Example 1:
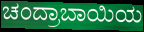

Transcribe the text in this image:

ಚಂದ್ರಾಬಾಯಿಯ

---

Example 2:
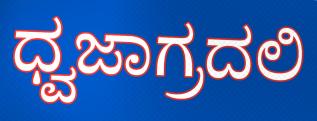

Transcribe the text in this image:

ಧ್ವಜಾಗ್ರದಲಿ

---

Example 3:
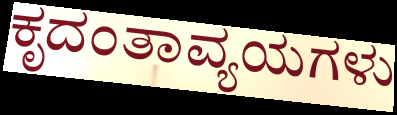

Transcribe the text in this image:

ಕೃದಂತಾವ್ಯಯಗಳು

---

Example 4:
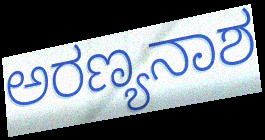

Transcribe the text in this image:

ಅರಣ್ಯನಾಶ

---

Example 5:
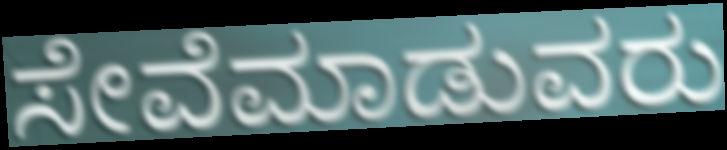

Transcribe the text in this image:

ಸೇವೆಮಾಡುವರು